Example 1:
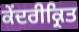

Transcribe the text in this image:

ਕੇਂਦਰੀਕ੍ਰਿਤ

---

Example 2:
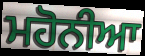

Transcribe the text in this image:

ਮਹੋਨੀਆ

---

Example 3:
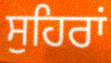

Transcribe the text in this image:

ਸੁਹਿਰਾਂ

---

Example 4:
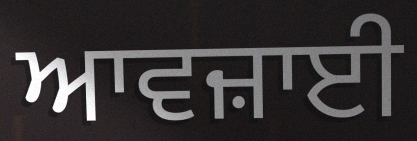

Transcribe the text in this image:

ਆਵਜ਼ਾਈ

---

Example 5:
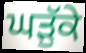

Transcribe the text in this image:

ਘੜੁੱਕੇ